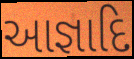
આજ્ઞાદિ